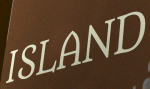
ISLAND